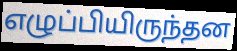
எழுப்பியிருந்தன